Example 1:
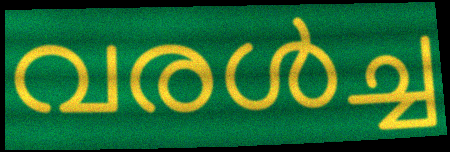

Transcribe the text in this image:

വരൾച്ച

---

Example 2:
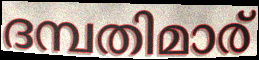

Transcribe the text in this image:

ദമ്പതിമാര്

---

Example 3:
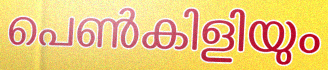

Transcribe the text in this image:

പെൺകിളിയും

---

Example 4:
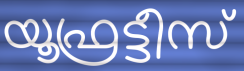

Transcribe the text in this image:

യൂഫ്രട്ടീസ്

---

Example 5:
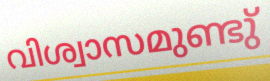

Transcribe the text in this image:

വിശ്വാസമുണ്ടു്